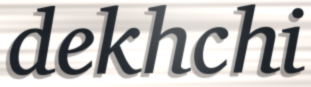
dekhchi